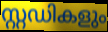
സ്റ്റഡികളും